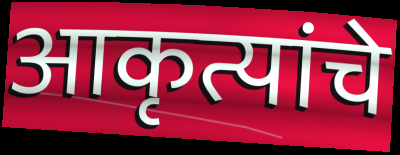
आकृत्यांचे